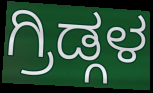
ಗ್ರಿಡ್ಗಳ